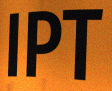
IPT